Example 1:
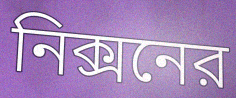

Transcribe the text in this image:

নিক্সনের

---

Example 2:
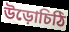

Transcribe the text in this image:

উড়োচিঠি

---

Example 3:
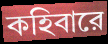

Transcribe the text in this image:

কহিবারে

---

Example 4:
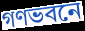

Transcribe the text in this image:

গণভবনে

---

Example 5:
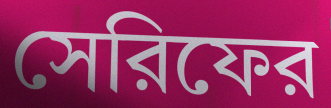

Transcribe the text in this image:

সেরিফের